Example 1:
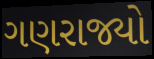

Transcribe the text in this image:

ગણરાજ્યો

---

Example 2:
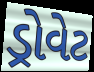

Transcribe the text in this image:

ડ્રોવેટ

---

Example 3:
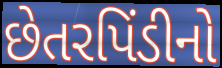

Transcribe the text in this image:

છેતરપિંડીનો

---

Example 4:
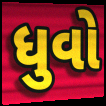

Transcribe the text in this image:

ધુવો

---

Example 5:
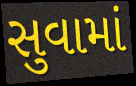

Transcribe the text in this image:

સુવામાં